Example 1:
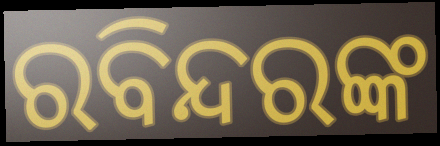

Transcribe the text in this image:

ରବିନ୍ଦରଙ୍କ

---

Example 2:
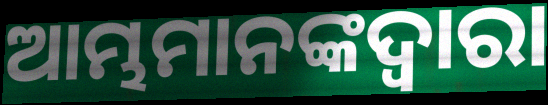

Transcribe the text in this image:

ଆମ୍ଭମାନଙ୍କଦ୍ୱାରା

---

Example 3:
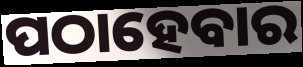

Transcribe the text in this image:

ପଠାହେବାର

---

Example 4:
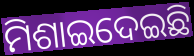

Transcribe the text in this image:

ମିଶାଇଦେଇଛି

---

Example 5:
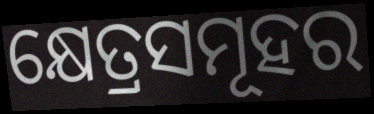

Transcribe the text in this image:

କ୍ଷେତ୍ରସମୂହର